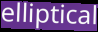
elliptical